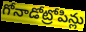
గోనాడోట్రోపిన్లు